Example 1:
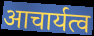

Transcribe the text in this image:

आचार्यत्व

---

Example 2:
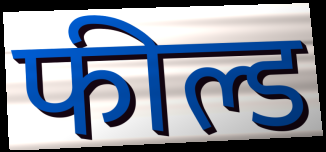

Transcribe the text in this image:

फील्‍ड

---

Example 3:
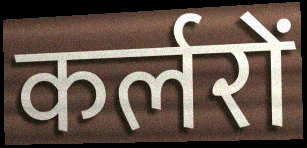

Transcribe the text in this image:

कर्लरों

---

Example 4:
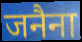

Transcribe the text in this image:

जनैना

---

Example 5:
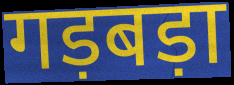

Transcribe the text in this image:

गड़बड़ा